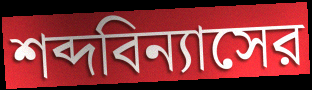
শব্দবিন্যাসের